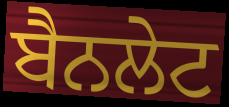
ਬੈਨਲੇਟ